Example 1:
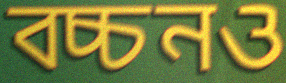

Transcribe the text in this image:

বচ্চনও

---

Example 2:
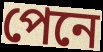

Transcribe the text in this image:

পেনে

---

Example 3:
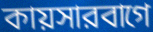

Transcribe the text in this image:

কায়সারবাগে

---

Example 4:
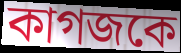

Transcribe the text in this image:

কাগজকে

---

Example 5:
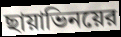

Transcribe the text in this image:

ছায়াভিনয়ের